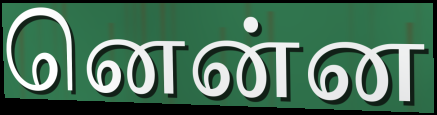
னென்ன